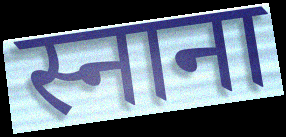
स्नाना